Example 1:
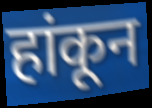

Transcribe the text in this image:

हांकून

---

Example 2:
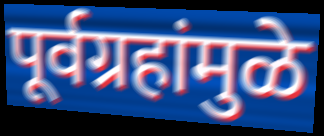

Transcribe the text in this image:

पूर्वग्रहांमुळे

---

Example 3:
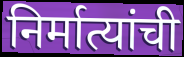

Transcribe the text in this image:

निर्मात्यांची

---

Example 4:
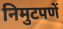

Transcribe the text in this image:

निमुटपणें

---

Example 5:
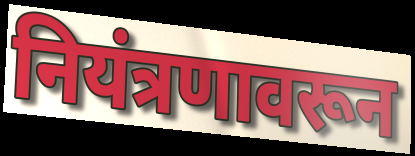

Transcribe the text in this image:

नियंत्रणावरून